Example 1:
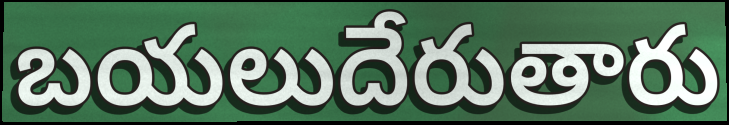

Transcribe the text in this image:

బయలుదేరుతారు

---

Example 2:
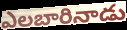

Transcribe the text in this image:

ఎలబారినాడు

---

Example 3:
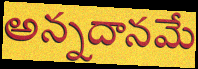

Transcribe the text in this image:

అన్నదానమే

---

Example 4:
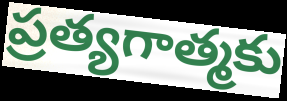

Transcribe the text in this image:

ప్రత్యగాత్మకు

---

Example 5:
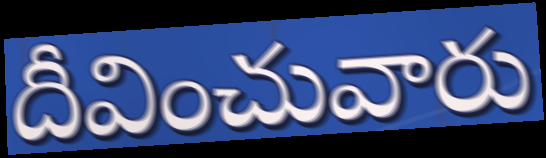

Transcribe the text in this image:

దీవించువారు